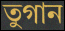
তুগান